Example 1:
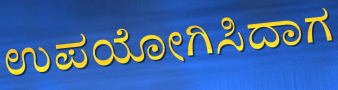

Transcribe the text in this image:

ಉಪಯೋಗಿಸಿದಾಗ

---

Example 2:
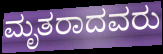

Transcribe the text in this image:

ಮೃತರಾದವರು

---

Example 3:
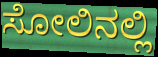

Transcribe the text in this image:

ಸೋಲಿನಲ್ಲಿ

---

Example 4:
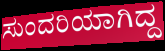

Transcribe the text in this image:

ಸುಂದರಿಯಾಗಿದ್ದ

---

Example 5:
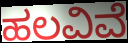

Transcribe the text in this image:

ಹಲವಿವೆ